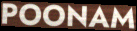
POONAM